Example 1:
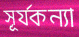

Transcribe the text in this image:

সূর্যকন্যা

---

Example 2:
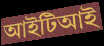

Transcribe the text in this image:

আইটিআই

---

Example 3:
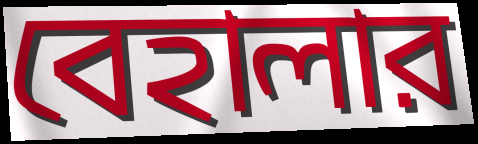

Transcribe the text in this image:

বেহালার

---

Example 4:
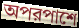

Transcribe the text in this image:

অপরপাশে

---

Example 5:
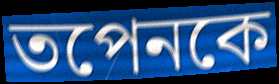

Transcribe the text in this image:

তপেনকে